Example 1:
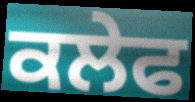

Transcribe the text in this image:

ਕਲੇਫ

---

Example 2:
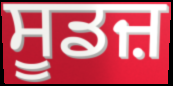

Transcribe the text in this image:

ਸੂਡਜ਼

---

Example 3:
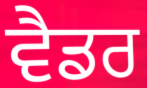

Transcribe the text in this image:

ਵੈਡਰ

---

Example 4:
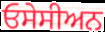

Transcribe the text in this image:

ਓਸੇਸੀਅਨ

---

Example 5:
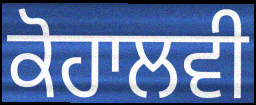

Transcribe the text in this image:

ਕੋਹਾਲਵੀ